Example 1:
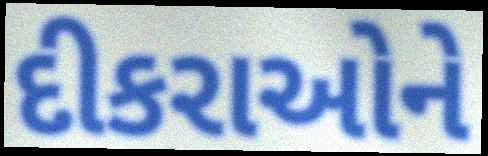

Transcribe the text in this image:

દીકરાઓને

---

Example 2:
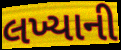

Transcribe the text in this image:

લખ્યાની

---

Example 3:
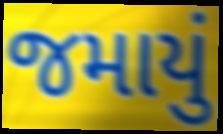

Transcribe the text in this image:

જમાયું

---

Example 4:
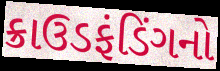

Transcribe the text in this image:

ક્રાઉડફંડિંગનો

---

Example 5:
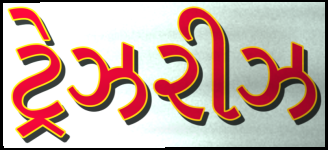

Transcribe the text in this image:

ટ્રેઝરીઝ